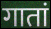
गातां